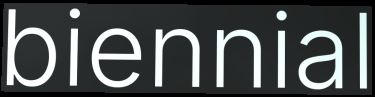
biennial